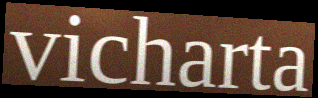
vicharta